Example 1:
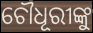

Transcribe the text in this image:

ଚୌଧୂରୀଙ୍କୁ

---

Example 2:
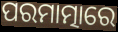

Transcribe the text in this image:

ପରମାତ୍ମାରେ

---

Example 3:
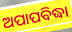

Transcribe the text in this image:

ଅପାପବିଦ୍ଧା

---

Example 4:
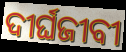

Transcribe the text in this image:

ଦୀର୍ଘଜୀବୀ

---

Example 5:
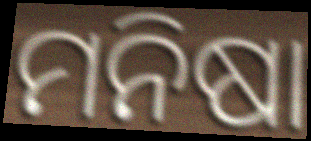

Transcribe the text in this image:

ମନିଷା